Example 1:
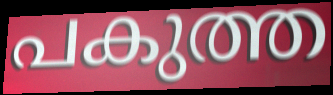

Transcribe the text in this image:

പകുത്ത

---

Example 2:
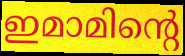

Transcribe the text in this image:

ഇമാമിന്റെ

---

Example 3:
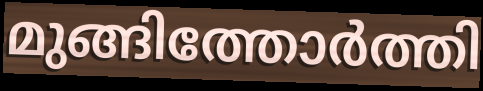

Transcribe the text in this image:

മുങ്ങിത്തോർത്തി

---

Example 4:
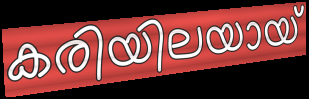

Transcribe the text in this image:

കരിയിലയായ്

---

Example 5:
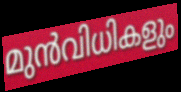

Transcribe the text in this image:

മുൻവിധികളും